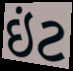
ઇંટ